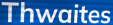
Thwaites